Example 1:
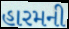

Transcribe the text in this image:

હારમની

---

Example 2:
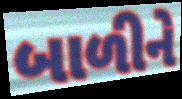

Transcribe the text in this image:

બાળીને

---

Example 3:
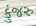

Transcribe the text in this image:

કુંજરુ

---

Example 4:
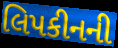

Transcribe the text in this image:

લિપકીનની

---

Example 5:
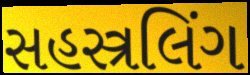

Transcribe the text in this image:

સહસ્ત્રલિંગ